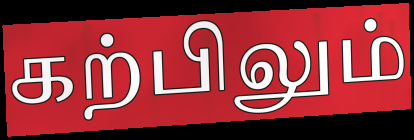
கற்பிலும்